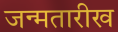
जन्मतारीख